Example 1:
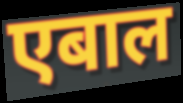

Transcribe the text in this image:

एबाल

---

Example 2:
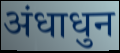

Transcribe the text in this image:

अंधाधुन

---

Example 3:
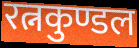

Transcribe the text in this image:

रत्नकुण्डल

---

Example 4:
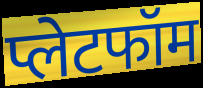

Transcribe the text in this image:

प्लेटफॉम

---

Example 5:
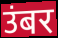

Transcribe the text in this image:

उंबर